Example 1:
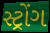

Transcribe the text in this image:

સ્ટ્રોંગ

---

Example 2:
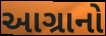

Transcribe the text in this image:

આગ્રાનો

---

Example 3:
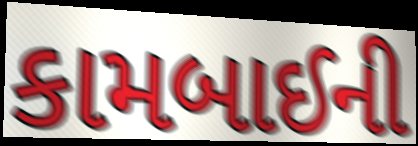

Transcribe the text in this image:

કામબાઈની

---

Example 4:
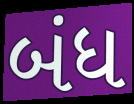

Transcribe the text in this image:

બંધ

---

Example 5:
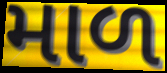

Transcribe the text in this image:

માળ